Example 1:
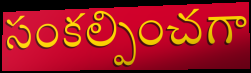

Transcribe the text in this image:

సంకల్పించగా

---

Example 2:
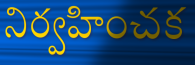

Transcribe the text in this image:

నిర్వహించక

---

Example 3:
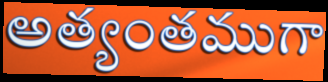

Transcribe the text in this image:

అత్యంతముగా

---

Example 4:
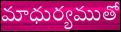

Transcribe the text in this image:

మాధుర్యముతో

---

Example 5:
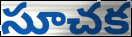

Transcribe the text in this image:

సూచక